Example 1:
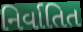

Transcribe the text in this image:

નિર્વાતિત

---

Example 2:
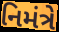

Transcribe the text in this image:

નિમંત્રે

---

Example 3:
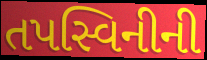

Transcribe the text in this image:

તપસ્વિનીની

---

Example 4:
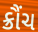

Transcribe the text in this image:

ક્રૌંચ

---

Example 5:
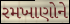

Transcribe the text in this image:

રમખાણોને